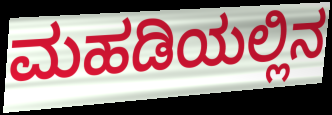
ಮಹಡಿಯಲ್ಲಿನ